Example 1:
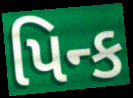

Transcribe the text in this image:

પિન્ક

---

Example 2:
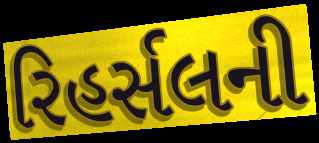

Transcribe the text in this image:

રિહર્સલની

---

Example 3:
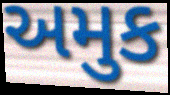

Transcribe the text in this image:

અમુક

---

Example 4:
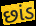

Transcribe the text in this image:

છાંડ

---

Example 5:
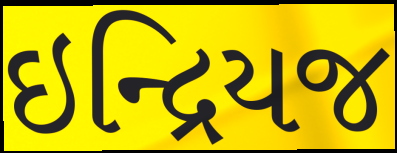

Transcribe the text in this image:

ઇન્દ્રિયજ